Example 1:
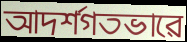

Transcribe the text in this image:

আদৰ্শগতভাৱে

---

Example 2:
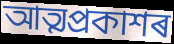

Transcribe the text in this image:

আত্মপ্ৰকাশৰ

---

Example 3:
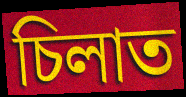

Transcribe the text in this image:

চিলাত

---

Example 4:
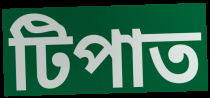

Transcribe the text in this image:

টিপাত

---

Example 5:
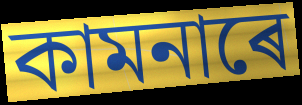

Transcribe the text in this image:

কামনাৰে